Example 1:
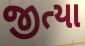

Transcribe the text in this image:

જીત્યા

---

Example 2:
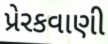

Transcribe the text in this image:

પ્રેરકવાણી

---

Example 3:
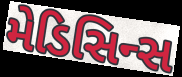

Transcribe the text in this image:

મેડિસિન્સ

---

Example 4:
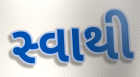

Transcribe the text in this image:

સ્વાથી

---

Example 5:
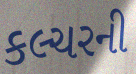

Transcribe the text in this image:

કલ્ચરની